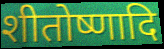
शीतोष्णादि